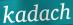
kadach